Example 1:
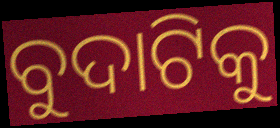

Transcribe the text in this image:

ବୁଦାଟିକୁ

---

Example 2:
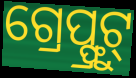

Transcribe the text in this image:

ଗ୍ରେପ୍ଫ୍ରୁଟ୍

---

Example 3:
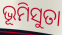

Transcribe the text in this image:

ଭୂମିସୁତା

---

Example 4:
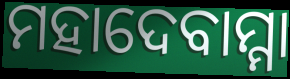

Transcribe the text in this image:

ମହାଦେବାମ୍ମା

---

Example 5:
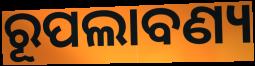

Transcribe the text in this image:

ରୂପଲାବଣ୍ୟ